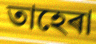
তাহেৰা